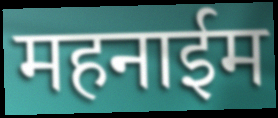
महनाईम